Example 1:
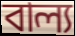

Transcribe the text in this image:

বাল্য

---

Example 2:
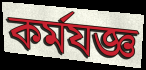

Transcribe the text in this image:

কর্মযজ্ঞ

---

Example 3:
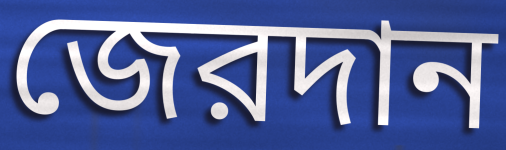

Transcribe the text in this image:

জেরদান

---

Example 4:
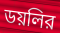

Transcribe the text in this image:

ডয়লির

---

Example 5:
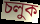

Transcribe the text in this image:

চলুক